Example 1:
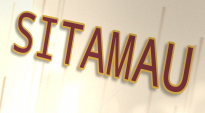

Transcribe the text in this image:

SITAMAU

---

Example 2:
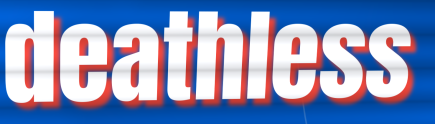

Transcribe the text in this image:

deathless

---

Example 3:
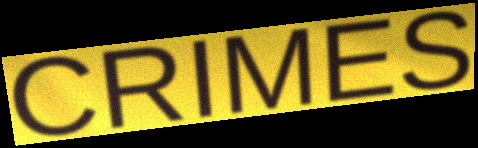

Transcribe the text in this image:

CRIMES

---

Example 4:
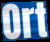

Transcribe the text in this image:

Ort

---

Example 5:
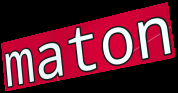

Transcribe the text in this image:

maton